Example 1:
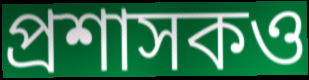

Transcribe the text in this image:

প্রশাসকও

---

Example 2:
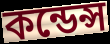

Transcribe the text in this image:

কন্ডেন্স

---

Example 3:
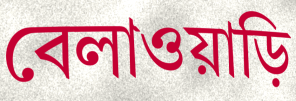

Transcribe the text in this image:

বেলাওয়াড়ি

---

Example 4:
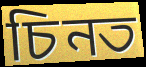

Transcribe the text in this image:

চিনত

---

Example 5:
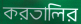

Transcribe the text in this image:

করতালির